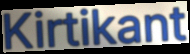
Kirtikant